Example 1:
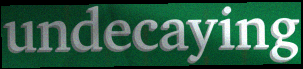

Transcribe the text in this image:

undecaying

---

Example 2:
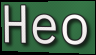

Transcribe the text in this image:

Heo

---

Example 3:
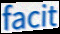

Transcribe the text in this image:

facit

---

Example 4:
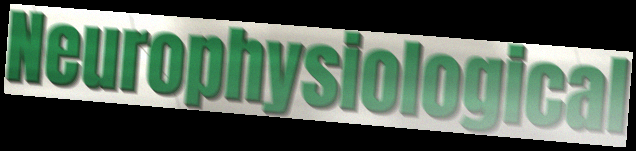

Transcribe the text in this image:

Neurophysiological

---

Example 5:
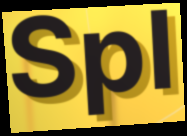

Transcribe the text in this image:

Spl